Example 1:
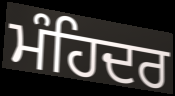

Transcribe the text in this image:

ਮੰਹਿਦਰ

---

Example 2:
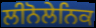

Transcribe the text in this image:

ਲੀਨੋਲੇਨਿਕ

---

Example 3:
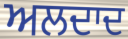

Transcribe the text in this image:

ਅਲਦਾਦ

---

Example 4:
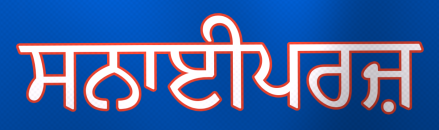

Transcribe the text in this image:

ਸਨਾਈਪਰਜ਼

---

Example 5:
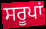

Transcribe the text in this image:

ਸਰੂਪਾਂ